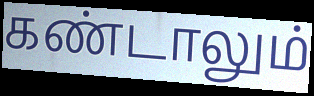
கண்டாலும்